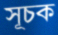
সূচক